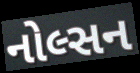
નોલ્સન